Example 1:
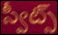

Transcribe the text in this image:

స్వీట్స్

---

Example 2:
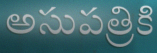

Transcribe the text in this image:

అసుపత్రికి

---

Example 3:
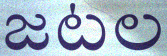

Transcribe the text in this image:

జటల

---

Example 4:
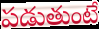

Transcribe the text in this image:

పడుతుంటే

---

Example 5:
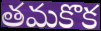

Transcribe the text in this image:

తమకొక